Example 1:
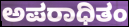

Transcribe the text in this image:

ಅಪರಾಧಿತಂ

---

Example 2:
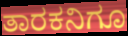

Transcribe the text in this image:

ತಾರಕನಿಗೂ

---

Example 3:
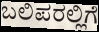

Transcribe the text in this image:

ಬಲಿಪರಲ್ಲಿಗೆ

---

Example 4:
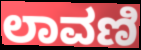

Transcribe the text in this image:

ಲಾವಣಿ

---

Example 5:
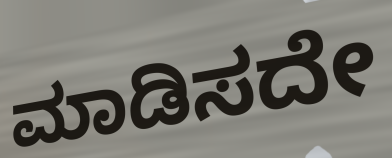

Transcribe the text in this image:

ಮಾಡಿಸದೇ